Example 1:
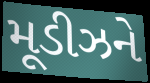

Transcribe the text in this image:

મૂડીઝને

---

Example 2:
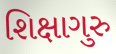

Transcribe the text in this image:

શિક્ષાગુરુ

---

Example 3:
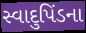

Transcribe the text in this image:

સ્વાદુપિંડના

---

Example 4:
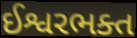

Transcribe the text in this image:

ઈશ્વરભક્ત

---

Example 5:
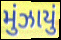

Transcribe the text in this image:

મુંઝાયું